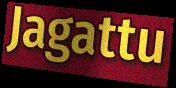
Jagattu